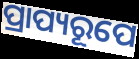
ପ୍ରାପ୍ୟରୂପେ